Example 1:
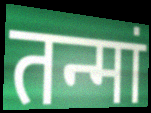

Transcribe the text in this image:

तन्मां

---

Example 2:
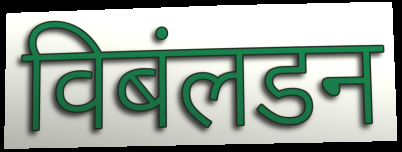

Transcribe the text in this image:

विबंलडन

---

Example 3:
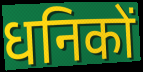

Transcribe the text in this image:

धनिकों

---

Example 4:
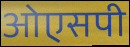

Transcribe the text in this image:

ओएसपी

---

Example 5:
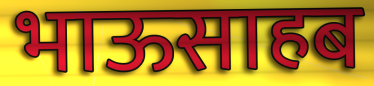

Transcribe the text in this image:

भाऊसाहब